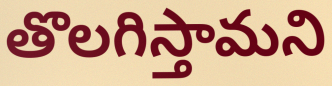
తొలగిస్తామని